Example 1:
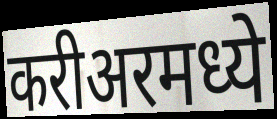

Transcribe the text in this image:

करीअरमध्ये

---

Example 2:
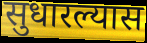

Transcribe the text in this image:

सुधारल्यास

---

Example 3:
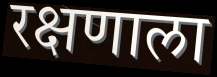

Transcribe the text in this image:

रक्षणाला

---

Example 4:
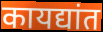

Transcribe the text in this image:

कायद्यांत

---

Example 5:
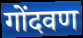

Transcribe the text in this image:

गोंदवण